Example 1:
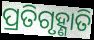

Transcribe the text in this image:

ପ୍ରତିଗୃହ୍ଣାତି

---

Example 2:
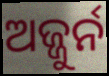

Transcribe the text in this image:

ଅଜ୍ଜୁର୍ନ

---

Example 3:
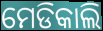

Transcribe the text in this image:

ମେଡିକାଲି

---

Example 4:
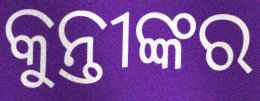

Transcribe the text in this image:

କୁନ୍ତୀଙ୍କର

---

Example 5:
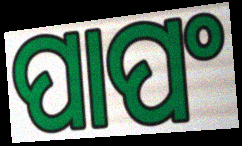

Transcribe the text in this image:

ପାପଂ